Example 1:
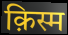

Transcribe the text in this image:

क़िस्म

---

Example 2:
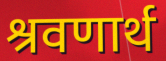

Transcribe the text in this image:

श्रवणार्थ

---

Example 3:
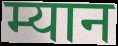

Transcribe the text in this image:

म्यान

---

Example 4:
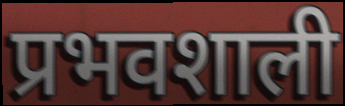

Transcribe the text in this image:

प्रभवशाली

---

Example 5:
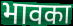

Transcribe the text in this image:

भावका